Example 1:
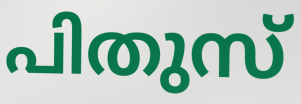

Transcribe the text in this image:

പിതുസ്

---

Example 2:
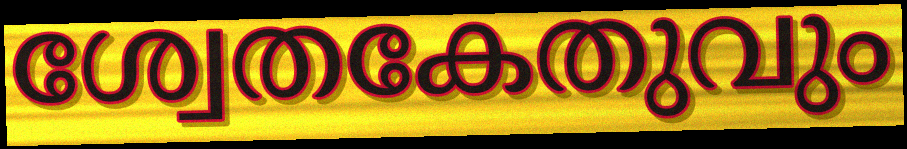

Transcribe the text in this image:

ശ്വേതകേതുവും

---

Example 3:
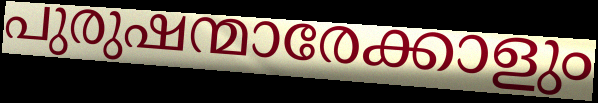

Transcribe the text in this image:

പുരുഷന്മാരേക്കാളും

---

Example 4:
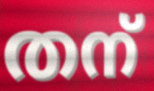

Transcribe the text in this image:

തന്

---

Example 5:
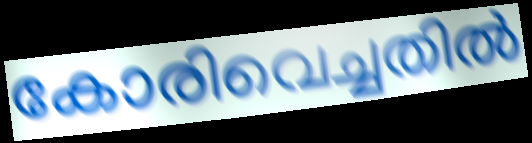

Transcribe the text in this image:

കോരിവെച്ചതിൽ